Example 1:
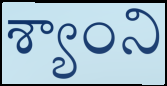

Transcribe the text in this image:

శ్యాంని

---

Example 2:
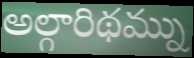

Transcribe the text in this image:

అల్గారిథమ్ను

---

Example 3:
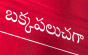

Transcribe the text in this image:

బక్కపలుచగా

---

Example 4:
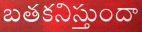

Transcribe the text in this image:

బతకనిస్తుందా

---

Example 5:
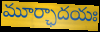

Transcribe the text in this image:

మూర్ఛాదయః